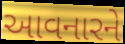
આવનારને